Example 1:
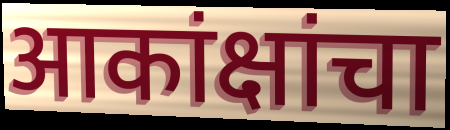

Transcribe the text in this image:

आकांक्षांचा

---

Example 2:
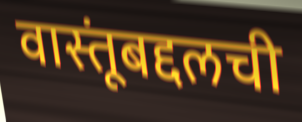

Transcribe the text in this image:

वास्तूंबद्दलची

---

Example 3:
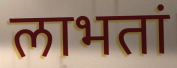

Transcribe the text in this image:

लाभतां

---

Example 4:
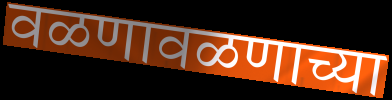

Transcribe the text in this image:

वळणावळणाच्या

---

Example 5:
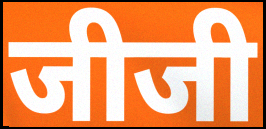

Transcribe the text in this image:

जीजी